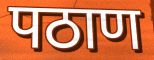
पठाण